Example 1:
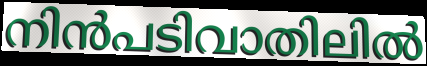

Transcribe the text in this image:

നിൻപടിവാതിലിൽ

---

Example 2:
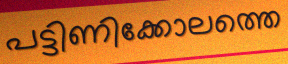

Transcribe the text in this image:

പട്ടിണിക്കോലത്തെ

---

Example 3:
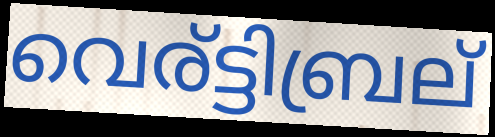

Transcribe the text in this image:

വെര്ട്ടിബ്രല്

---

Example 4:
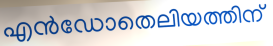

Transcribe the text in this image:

എൻഡോതെലിയത്തിന്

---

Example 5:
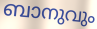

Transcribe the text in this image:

ബാനുവും